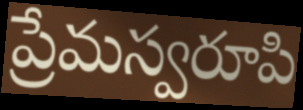
ప్రేమస్వరూపి